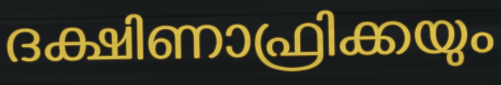
ദക്ഷിണാഫ്രിക്കയും